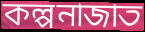
কল্পনাজাত